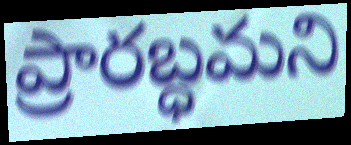
ప్రారబ్ధమని